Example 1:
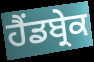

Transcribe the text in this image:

ਹੈਂਡਬ੍ਰੇਕ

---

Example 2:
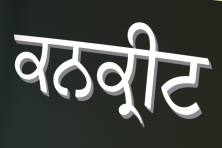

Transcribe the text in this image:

ਕਨਕ੍ਰੀਟ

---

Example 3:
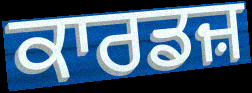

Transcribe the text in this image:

ਕਾਰਡਜ਼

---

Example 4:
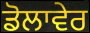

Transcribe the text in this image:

ਡੋਲਾਵੇਰ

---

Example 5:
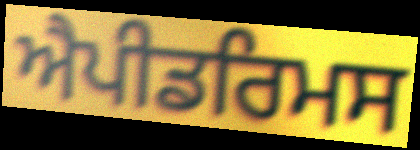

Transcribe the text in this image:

ਐਪੀਡਰਿਮਸ